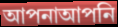
আপনাআপনি